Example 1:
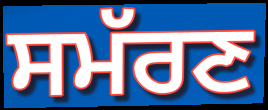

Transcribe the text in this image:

ਸਮੱਰਣ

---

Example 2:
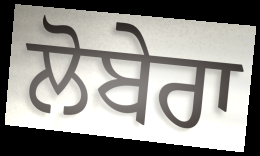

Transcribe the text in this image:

ਲੋਬੇਰਾ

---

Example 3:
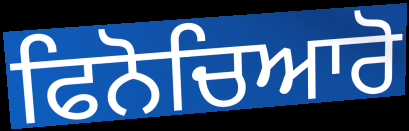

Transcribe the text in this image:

ਫਿਨੋਚਿਆਰੋ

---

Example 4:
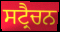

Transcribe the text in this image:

ਸਟ੍ਰੈਚਨ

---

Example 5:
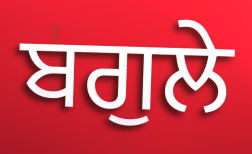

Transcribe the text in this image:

ਬਗੁਲੇ